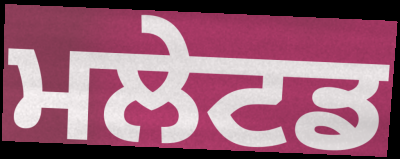
ਮਲੇਟਡ